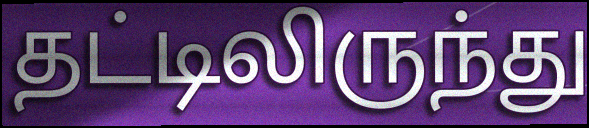
தட்டிலிருந்து